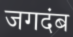
जगदंब